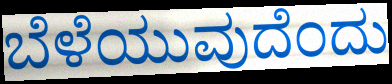
ಬೆಳೆಯುವುದೆಂದು